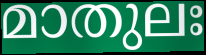
മാതുലഃ